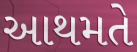
આથમતે